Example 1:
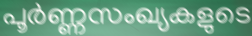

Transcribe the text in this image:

പൂർണ്ണസംഖ്യകളുടെ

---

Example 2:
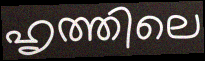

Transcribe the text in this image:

ഹൃത്തിലെ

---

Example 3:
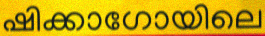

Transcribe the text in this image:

ഷിക്കാഗോയിലെ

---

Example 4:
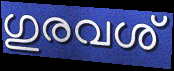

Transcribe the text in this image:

ഗുരവശ്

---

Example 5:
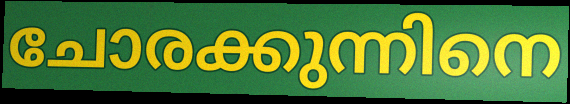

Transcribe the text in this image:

ചോരക്കുന്നിനെ